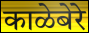
काळेबेरे